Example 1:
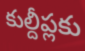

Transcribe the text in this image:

కుల్దీప్లకు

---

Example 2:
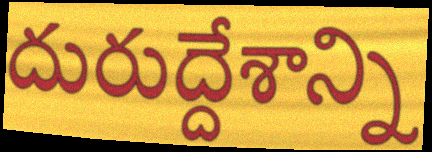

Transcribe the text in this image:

దురుద్దేశాన్ని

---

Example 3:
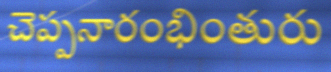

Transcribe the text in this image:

చెప్పనారంభింతురు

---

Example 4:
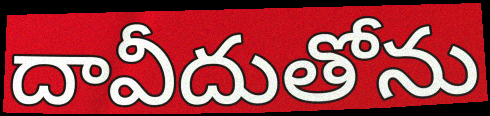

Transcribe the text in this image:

దావీదుతోను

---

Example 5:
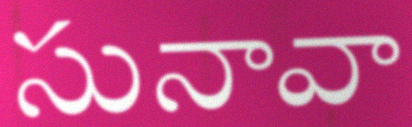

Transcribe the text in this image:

సునావా